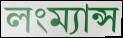
লংম্যান্স